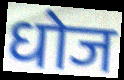
धोज